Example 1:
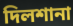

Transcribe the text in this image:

দিলশানা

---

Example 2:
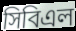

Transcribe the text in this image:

সিবিএল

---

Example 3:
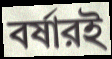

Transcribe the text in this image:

বর্ষারই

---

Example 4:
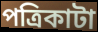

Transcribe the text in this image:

পত্রিকাটা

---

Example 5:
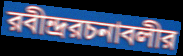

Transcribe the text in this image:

রবীন্দ্ররচনাবলীর